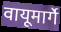
वायूमार्गे